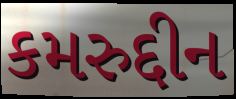
કમરુદ્દીન